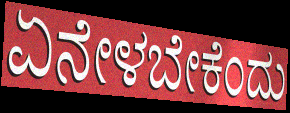
ಏನೇಳಬೇಕೆಂದು